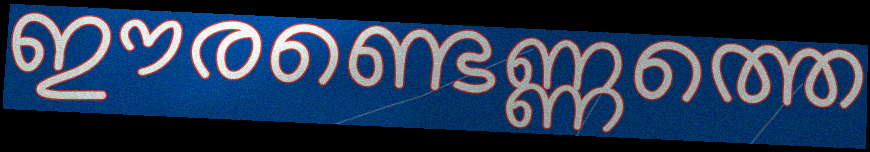
ഈരണ്ടെണ്ണത്തെ